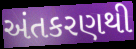
અંતકરણથી